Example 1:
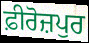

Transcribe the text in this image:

ਫ਼ੀਰੋਜ਼ਪੁਰ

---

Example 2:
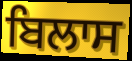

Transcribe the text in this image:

ਬਿਲਾਸ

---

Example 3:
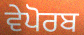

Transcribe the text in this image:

ਵੇਪੋਰਬ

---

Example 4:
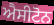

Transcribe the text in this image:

ਐਸੀਟੋਨ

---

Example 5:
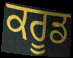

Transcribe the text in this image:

ਕਰੂਡ